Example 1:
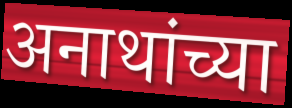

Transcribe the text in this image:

अनाथांच्या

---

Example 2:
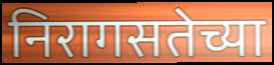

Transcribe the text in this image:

निरागसतेच्या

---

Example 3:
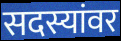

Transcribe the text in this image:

सदस्यांवर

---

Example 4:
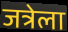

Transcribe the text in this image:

जत्रेला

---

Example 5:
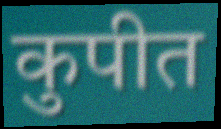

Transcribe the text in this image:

कुपीत